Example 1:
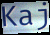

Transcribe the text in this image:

Kaj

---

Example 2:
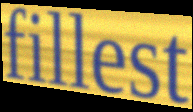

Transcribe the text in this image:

fillest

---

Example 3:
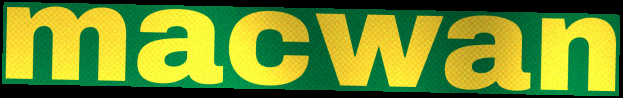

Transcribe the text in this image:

macwan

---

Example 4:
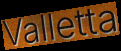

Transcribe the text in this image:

Valletta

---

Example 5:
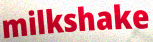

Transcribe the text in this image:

milkshake